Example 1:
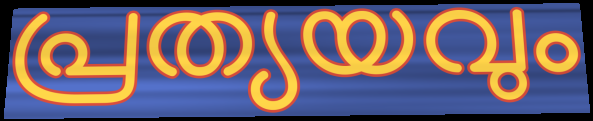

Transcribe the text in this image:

പ്രത്യയവും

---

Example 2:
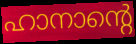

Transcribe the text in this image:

ഹാനാന്റെ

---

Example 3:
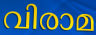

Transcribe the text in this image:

വിരാമ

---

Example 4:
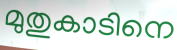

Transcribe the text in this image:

മുതുകാടിനെ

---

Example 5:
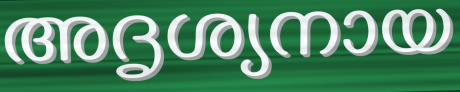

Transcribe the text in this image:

അദൃശ്യനായ